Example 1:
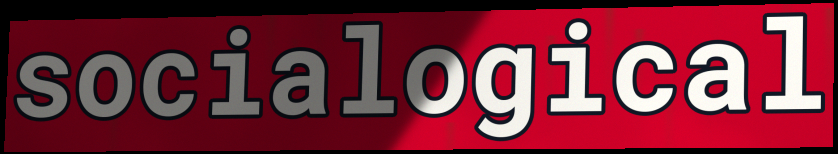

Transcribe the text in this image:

socialogical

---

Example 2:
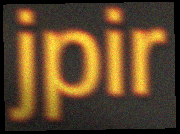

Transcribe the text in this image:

jpir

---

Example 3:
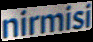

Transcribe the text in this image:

nirmisi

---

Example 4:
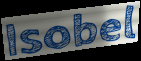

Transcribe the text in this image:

Isobel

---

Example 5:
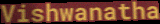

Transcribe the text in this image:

Vishwanatha